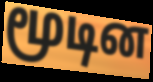
மூடின